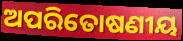
ଅପରିତୋଷଣୀୟ